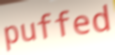
puffed